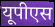
यूपीएस